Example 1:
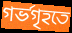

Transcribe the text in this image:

গর্ভগৃহতে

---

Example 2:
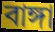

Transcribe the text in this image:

বাঙ্গা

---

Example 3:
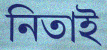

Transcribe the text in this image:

নিতাই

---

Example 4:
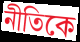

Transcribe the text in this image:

নীতিকে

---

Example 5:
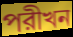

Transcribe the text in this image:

পরীখন